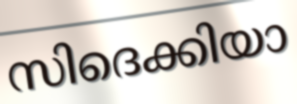
സിദെക്കിയാ